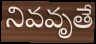
నివవృతే